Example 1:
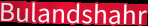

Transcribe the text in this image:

Bulandshahr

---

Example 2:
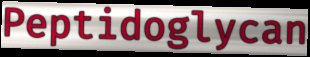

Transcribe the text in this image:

Peptidoglycan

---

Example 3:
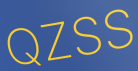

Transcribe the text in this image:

QZSS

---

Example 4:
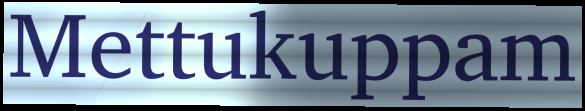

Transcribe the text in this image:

Mettukuppam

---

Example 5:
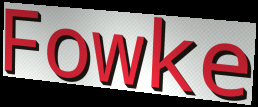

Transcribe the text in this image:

Fowke